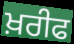
ਖ਼ਰੀਫ